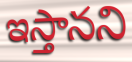
ఇస్తానని